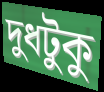
দুধটুকু